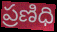
ప్రణిధి